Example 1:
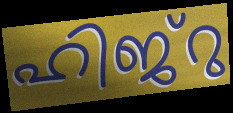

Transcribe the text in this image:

ഹിജ്റു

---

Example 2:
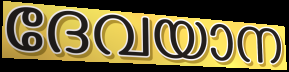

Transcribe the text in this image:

ദേവയാന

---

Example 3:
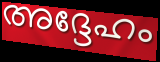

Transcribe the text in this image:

അദ്ദേഹം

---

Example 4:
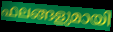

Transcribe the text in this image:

ഫലങ്ങളുമായി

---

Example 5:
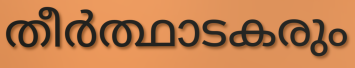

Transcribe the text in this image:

തീർത്ഥാടകരും